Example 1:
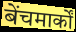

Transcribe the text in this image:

बेंचमार्कों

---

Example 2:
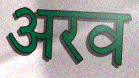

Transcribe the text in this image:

अरव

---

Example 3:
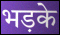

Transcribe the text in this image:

भड़के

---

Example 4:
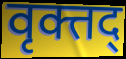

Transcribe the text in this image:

वृक्तद्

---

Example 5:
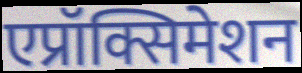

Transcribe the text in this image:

एप्रॉक्सिमेशन